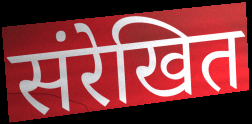
संरेखित